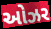
ઓઝર